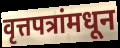
वृत्तपत्रांमधून